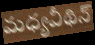
మధ్యవీథిన్